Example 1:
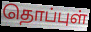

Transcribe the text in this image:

தொப்புள்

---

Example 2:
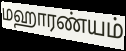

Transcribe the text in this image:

மஹாரண்யம்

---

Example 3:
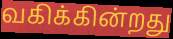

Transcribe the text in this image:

வகிக்கின்றது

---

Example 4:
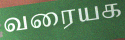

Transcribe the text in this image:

வரையக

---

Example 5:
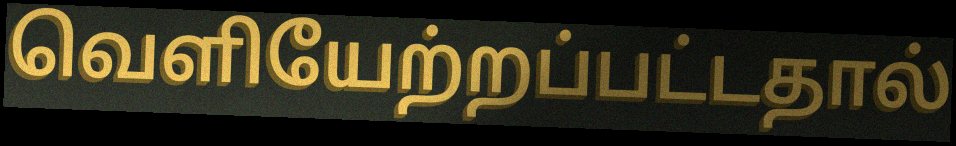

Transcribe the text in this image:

வெளியேற்றப்பட்டதால்